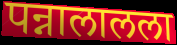
पन्नालालला